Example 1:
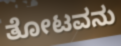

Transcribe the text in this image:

ತೋಟವನು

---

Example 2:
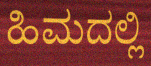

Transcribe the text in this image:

ಹಿಮದಲ್ಲಿ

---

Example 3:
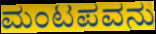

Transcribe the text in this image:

ಮಂಟಪವನು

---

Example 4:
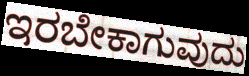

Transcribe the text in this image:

ಇರಬೇಕಾಗುವುದು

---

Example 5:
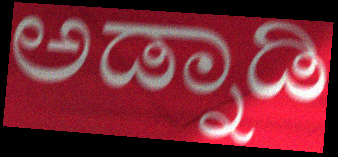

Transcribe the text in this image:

ಅಡ್ನಾಡಿ